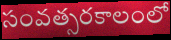
సంవత్సరకాలంలో